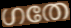
ഗതേ